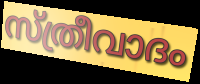
സ്ത്രീവാദം